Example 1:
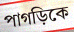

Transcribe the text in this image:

পাগড়িকে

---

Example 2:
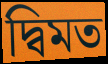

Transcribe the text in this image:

দ্বিমত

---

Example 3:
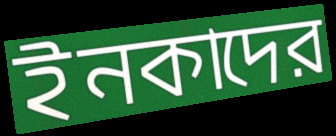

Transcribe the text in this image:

ইনকাদের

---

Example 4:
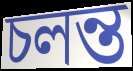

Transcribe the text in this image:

চলন্ত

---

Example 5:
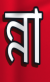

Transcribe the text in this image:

ন্না